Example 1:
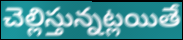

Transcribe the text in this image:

చెల్లిస్తున్నట్లయితే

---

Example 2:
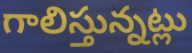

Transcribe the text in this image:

గాలిస్తున్నట్లు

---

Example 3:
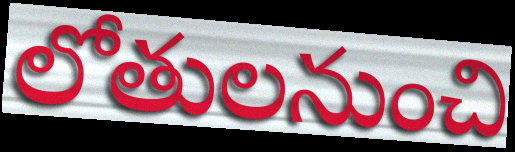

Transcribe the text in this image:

లోతులనుంచి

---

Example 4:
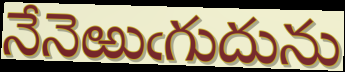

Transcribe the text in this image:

నేనెఱుఁగుదును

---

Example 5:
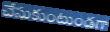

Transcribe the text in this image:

చేసుకుంటుండగా